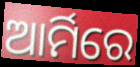
ଆର୍ମିରେ